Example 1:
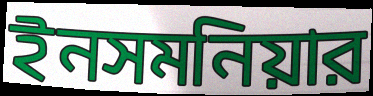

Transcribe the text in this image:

ইনসমনিয়ার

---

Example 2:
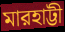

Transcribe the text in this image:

মারহাট্টী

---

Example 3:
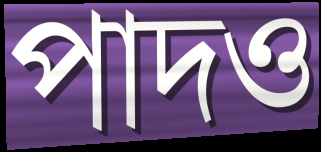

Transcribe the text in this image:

পাদও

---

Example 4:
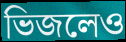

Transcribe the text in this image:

ভিজলেও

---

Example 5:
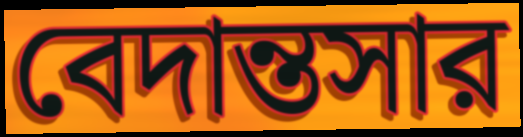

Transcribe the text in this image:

বেদান্তসার